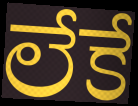
లేకే